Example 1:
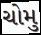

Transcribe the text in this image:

ચોમુ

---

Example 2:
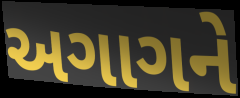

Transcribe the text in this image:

અગાગને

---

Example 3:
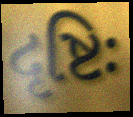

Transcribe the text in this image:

દૃષ્ટિઃ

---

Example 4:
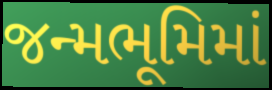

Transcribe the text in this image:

જન્મભૂમિમાં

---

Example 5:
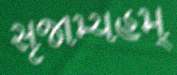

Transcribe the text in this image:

સૃજામ્યહમ્